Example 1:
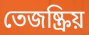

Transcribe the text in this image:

তেজষ্ক্রিয়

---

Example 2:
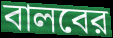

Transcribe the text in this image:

বালবের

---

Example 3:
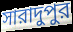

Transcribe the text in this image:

সারাদুপুর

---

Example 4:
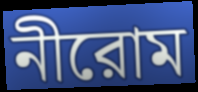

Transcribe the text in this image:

নীরোম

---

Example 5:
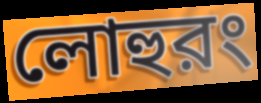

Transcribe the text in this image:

লোহুরং